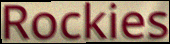
Rockies